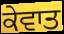
ਕੇਵਾਤ